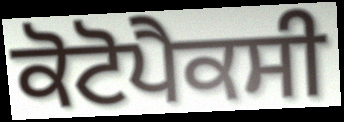
ਕੋਟੋਪੈਕਸੀ